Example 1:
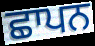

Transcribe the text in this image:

ਛਾਪਨ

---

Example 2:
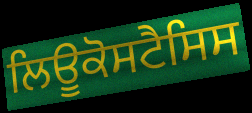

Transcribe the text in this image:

ਲਿਊਕੋਸਟੈਸਿਸ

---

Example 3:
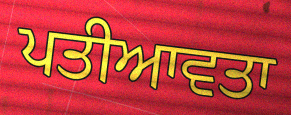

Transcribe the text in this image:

ਪਤੀਆਵਤਾ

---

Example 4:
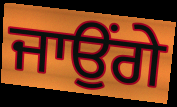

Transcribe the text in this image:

ਜਾਉਂਗੇ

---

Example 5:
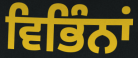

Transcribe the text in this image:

ਵਿਭਿੰਨਾਂ